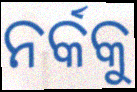
ନର୍କକୁ